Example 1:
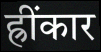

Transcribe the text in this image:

ह्रींकार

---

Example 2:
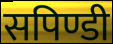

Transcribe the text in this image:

सपिण्डी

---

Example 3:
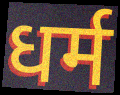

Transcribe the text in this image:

धर्म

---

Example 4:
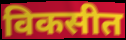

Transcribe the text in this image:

विकसीत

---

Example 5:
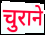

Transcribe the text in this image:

चुराने